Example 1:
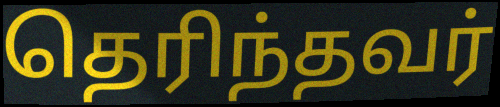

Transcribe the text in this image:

தெரிந்தவர்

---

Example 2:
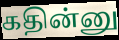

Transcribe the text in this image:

கதின்னு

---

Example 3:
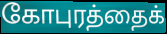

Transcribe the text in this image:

கோபுரத்தைக்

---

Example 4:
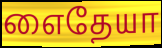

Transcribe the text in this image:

எைதேயா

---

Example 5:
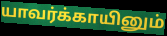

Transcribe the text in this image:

யாவர்க்காயினும்